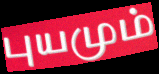
புயமும்